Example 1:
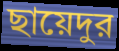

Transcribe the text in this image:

ছায়েদুর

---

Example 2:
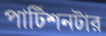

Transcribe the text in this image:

পার্টিশনটার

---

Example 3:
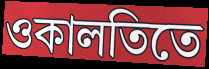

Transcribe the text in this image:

ওকালতিতে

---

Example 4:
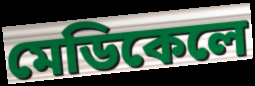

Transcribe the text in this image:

মেডিকেলে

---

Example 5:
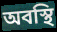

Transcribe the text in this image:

অবস্থি